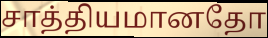
சாத்தியமானதோ